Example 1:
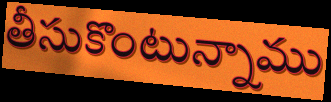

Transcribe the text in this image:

తీసుకొంటున్నాము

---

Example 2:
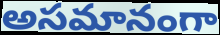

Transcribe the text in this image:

అసమానంగా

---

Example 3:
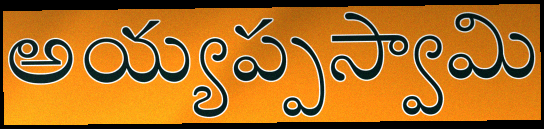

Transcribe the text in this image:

అయ్యప్పస్వామి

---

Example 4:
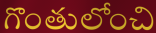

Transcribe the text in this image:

గొంతులోంచి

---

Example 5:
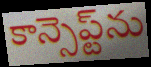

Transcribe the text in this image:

కాన్సెప్ట్‌ను